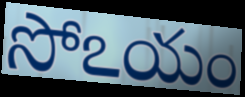
సోఽయం